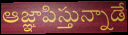
ఆజ్ఞాపిస్తున్నాడే